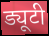
ड्यूटी